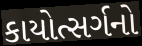
કાયોત્સર્ગનો